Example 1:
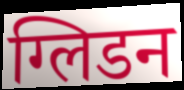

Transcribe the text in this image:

ग्लिडन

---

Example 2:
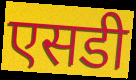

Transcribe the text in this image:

एसडी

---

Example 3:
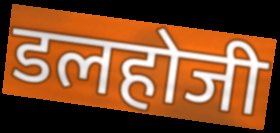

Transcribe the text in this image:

डलहोजी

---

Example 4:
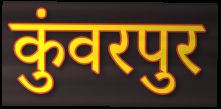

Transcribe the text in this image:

कुंवरपुर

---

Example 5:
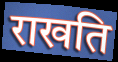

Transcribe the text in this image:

राखति